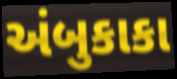
અંબુકાકા